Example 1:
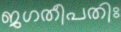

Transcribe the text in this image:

ജഗതീപതിഃ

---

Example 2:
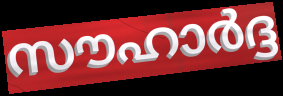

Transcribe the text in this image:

സൗഹാർദ്ദ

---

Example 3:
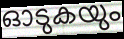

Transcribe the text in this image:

ഓടുകയും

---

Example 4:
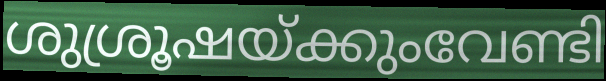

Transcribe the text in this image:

ശുശ്രൂഷയ്ക്കുംവേണ്ടി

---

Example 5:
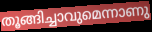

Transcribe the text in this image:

തൂങ്ങിച്ചാവുമെന്നാണു